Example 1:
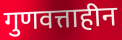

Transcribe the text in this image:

गुणवत्ताहीन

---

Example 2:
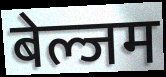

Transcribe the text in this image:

बेल्जम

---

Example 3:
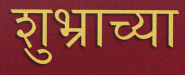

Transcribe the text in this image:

शुभ्राच्या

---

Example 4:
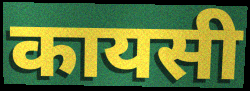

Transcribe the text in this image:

कायसी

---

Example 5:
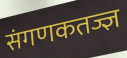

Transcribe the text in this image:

संगणकतज्ज्ञ